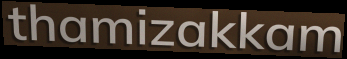
thamizakkam